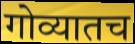
गोव्यातच